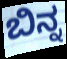
ಬಿನ್ನ